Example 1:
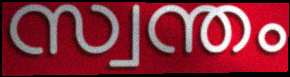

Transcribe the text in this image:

സ്വന്തം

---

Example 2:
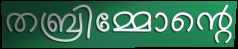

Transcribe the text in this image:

തബ്രിമ്മോന്റെ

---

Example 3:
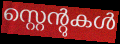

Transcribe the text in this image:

സ്റ്റെന്റുകൾ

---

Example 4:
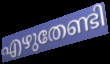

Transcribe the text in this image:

എഴുതേണ്ടി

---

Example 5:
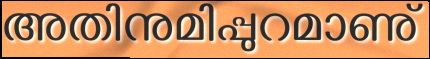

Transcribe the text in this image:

അതിനുമിപ്പുറമാണു്